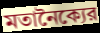
মতানৈক্যের